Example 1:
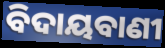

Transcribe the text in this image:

ବିଦାୟବାଣୀ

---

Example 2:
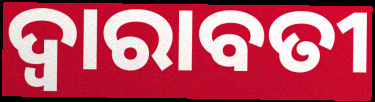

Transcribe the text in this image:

ଦ୍ଵାରାବତୀ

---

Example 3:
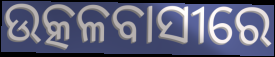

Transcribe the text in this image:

ଉତ୍କଳବାସୀରେ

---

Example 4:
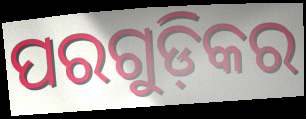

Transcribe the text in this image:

ପରଗୁଡ଼ିକର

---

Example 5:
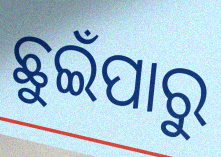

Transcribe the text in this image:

ଛୁଇଁପାରୁ